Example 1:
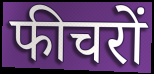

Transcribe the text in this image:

फीचरों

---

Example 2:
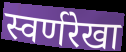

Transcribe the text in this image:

स्वर्णरेखा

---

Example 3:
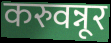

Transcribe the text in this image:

करुवन्नूर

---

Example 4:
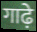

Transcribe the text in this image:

गाढ़े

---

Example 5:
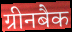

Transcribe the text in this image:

ग्रीनबैक